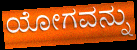
ಯೋಗವನ್ನು